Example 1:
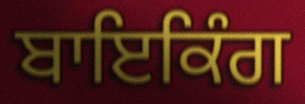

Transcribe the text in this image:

ਬਾਇਕਿੰਗ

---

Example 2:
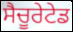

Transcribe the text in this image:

ਸੈਚੂਰੇਟੇਡ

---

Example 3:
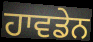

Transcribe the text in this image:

ਹਾਵਡੇਨ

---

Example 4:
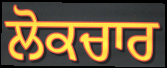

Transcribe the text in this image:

ਲੋਕਚਾਰ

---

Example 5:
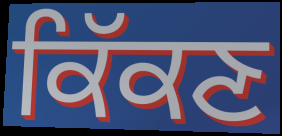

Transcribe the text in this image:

ਕਿੱਕਣ